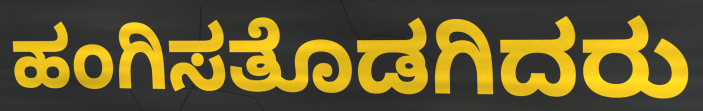
ಹಂಗಿಸತೊಡಗಿದರು